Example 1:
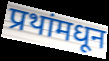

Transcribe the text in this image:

प्रथांमधून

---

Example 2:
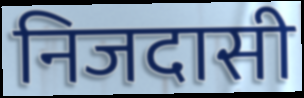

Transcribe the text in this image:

निजदासी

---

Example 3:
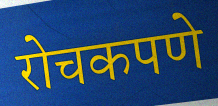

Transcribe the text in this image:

रोचकपणे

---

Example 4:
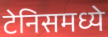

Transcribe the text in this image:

टेनिसमध्ये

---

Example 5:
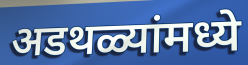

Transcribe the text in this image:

अडथळ्यांमध्ये